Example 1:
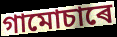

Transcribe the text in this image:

গামোচাৰে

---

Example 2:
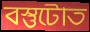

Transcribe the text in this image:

বস্তুটোত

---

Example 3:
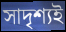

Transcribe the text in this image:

সাদৃশ্যই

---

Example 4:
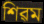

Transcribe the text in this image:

শিৱম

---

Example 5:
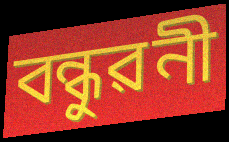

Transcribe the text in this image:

বন্ধুৱনী